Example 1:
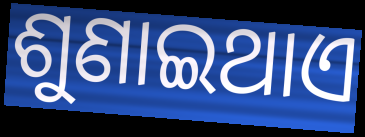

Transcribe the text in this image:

ଶୁଣାଇଥାଏ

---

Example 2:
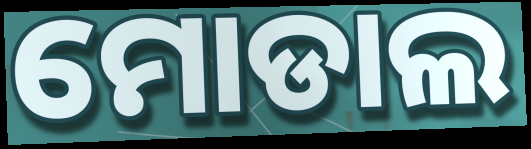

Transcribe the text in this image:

ମୋଡାଲ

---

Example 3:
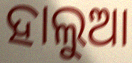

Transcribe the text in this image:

ହାଲୁଆ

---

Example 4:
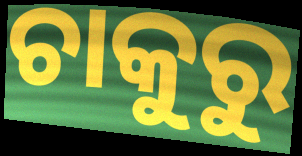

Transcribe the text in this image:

ଚାକୁରୁ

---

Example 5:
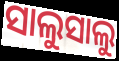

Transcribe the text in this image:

ସାଲୁସାଲୁ